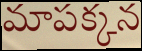
మాపక్కన